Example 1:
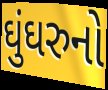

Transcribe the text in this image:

ઘુંઘરુનો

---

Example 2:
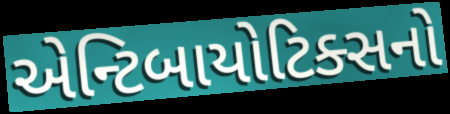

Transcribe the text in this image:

એન્ટિબાયોટિક્સનો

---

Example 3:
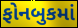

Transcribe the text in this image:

ફોનબુકમાં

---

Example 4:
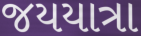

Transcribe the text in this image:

જયયાત્રા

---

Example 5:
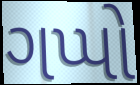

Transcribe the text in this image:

ગપ્પો